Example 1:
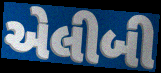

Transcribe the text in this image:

એલીબી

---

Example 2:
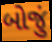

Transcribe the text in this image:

બોજું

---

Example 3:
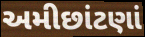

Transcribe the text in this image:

અમીછાંટણાં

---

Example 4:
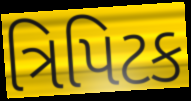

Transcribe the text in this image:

ત્રિપિટક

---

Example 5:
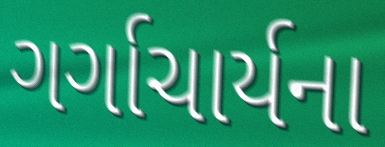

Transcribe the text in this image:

ગર્ગાચાર્યના